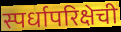
स्पर्धापरिक्षेची